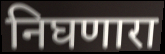
निघणारा